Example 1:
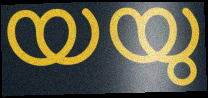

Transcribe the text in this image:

യയു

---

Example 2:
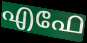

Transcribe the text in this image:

എഫേ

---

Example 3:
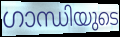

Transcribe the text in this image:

ഗാന്ധിയുടെ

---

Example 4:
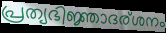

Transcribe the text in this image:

പ്രത്യഭിജ്ഞാദര്ശനം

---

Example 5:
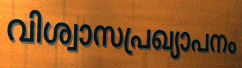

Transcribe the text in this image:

വിശ്വാസപ്രഖ്യാപനം